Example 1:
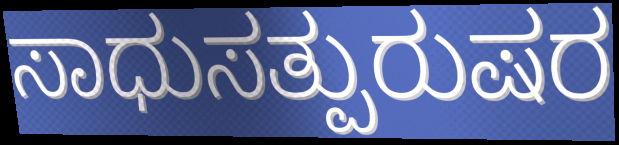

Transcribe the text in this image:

ಸಾಧುಸತ್ಪುರುಷರ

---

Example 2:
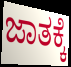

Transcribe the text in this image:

ಜಾತಕ್ಕೆ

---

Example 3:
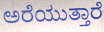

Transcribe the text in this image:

ಅರೆಯುತ್ತಾರೆ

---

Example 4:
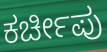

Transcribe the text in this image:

ಕರ್ಚೀಪು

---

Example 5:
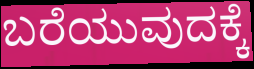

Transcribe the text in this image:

ಬರೆಯುವುದಕ್ಕೆ